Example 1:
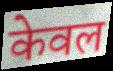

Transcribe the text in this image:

केवल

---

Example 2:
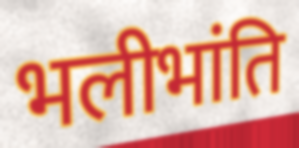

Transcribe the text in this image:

भलीभांति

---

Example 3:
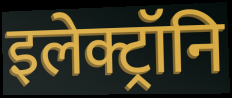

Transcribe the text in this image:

इलेक्ट्रॉनि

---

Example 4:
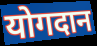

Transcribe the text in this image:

योगदान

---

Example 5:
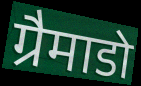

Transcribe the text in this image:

ग्रैमाडो